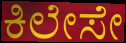
ಕಿಲೇಸೇ